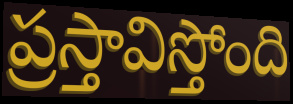
ప్రస్తావిస్తోంది